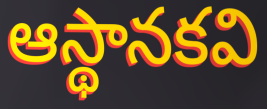
ఆస్థానకవి